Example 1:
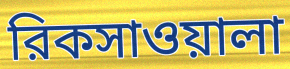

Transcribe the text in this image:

রিকসাওয়ালা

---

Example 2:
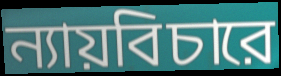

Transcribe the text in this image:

ন্যায়বিচারে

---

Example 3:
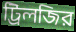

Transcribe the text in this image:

ট্রিলজির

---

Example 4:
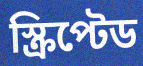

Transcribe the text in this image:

স্ক্রিপ্টেড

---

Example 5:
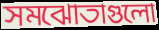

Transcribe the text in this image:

সমঝোতাগুলো